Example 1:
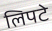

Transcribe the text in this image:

लिपटे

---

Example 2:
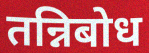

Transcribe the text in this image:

तन्निबोध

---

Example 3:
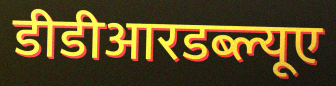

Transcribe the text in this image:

डीडीआरडब्ल्यूए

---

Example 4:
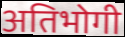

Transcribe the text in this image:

अतिभोगी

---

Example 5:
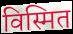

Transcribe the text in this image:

विस्मित